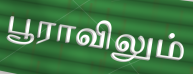
பூராவிலும்